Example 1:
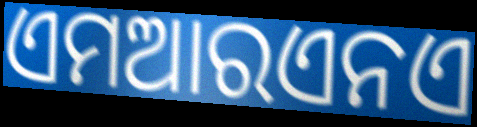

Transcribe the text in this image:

ଏମଆରଏନଏ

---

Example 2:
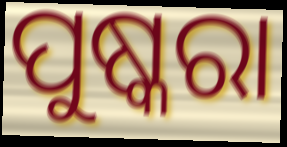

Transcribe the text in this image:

ପୁଷ୍କରା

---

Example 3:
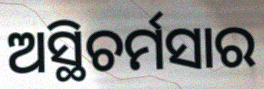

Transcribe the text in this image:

ଅସ୍ଥିଚର୍ମସାର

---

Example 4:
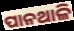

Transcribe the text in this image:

ପାନଥାଳି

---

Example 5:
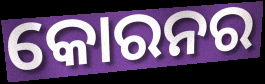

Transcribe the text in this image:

କୋରନର